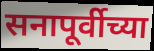
सनापूर्वीच्या